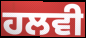
ਹਲਵੀ